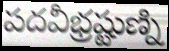
పదవీభ్రష్టుణ్ని